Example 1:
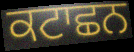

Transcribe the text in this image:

ਕਟਾਛਨ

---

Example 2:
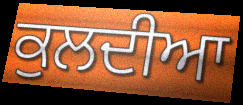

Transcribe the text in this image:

ਕੁਲਦੀਆ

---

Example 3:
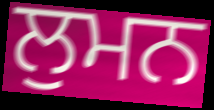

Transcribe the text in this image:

ਲੁਮਨ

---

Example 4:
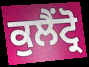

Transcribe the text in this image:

ਕੁਲੈਂਟ੍ਰੋ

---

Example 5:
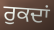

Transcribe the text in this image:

ਰੁਕਦਾਂ